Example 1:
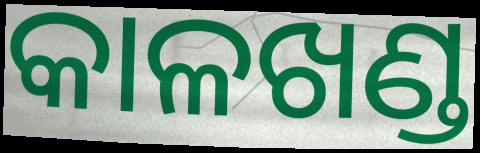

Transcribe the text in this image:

କାଳଖଣ୍ଡ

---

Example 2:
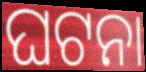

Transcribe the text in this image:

ଘଟନା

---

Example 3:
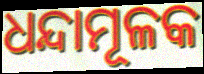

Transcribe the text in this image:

ଧନ୍ଦାମୂଳକ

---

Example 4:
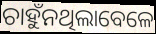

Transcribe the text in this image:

ଚାହୁଁନଥିଲାବେଳେ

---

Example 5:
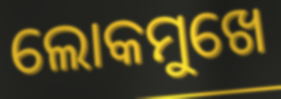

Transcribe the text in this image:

ଲୋକମୁଖେ